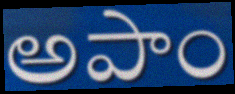
అపాం